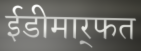
ईडीमार्फत